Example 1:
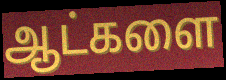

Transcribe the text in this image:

ஆட்களை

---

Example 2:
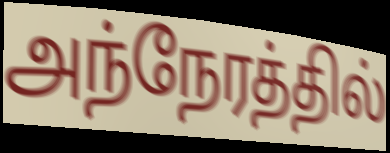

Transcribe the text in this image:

அந்நேரத்தில்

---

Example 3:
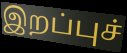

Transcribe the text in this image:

இறப்புச்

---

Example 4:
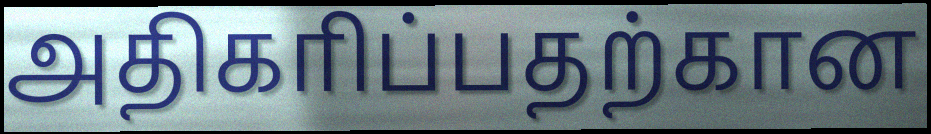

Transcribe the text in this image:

அதிகரிப்பதற்கான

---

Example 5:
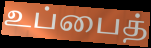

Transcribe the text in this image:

உப்பைத்